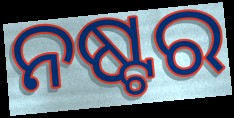
ନଷ୍ଟର